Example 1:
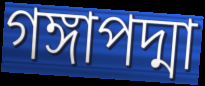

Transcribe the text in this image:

গঙ্গাপদ্মা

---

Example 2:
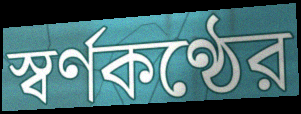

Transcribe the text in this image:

স্বর্ণকণ্ঠের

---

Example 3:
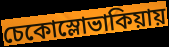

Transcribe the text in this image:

চেকোস্লোভাকিয়ায়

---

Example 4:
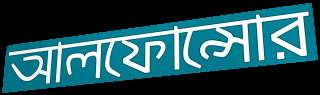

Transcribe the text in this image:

আলফোন্সোর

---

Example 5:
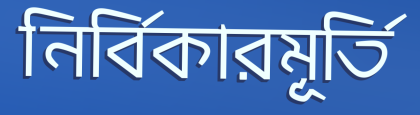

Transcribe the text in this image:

নির্বিকারমূর্তি